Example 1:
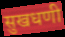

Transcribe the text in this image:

सुखधणी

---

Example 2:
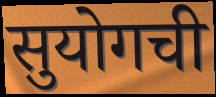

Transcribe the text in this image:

सुयोगची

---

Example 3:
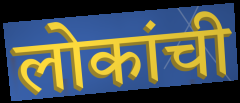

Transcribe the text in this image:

लोकांची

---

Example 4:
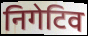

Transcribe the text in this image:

निगेटिव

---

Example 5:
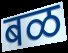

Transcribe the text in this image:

बळ